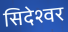
सिदेश्वर